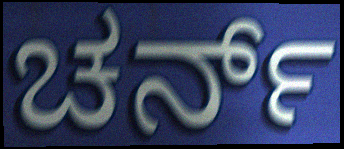
ಚರ್ನ್